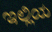
ಇಲ್ಲಿಯ